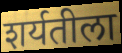
शर्यतीला